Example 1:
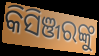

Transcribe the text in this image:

କିସିଞ୍ଜରଙ୍କୁ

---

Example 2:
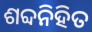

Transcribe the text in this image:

ଶବ୍ଦନିହିତ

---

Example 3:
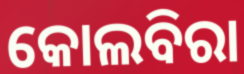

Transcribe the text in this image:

କୋଲବିରା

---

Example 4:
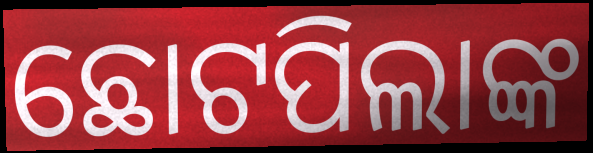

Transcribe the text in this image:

ଛୋଟପିଲାଙ୍କ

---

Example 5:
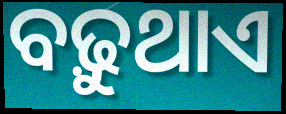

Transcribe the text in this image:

ବଢ଼ୁଥାଏ